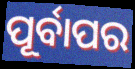
ପୂର୍ବାପର